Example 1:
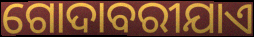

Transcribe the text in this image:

ଗୋଦାବରୀଯାଏ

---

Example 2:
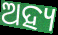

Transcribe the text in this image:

ଅହ୍ୟ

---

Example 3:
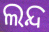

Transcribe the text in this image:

ଲନ୍ଦ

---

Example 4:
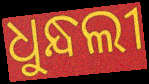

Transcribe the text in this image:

ଧୁନ୍ଧଲୀ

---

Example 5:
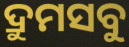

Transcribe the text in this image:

ଦ୍ରୁମସବୁ